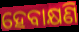
ହେବାକ୍ଷଣି